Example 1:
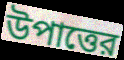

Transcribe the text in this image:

উপাত্তের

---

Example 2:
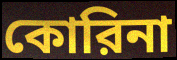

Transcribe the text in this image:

কোরিনা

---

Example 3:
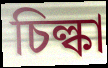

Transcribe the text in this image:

চিল্কা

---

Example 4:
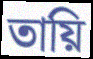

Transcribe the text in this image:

তায়ি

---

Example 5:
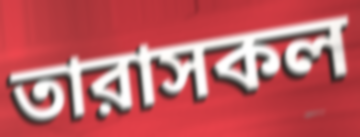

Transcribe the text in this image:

তারাসকল